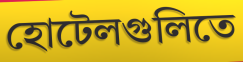
হোটেলগুলিতে